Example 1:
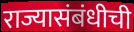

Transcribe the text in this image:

राज्यासंबंधीची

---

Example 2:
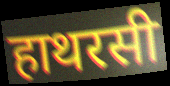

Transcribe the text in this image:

हाथरसी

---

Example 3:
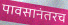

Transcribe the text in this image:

पावसानंतरच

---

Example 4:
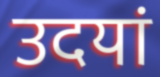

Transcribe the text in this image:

उदयां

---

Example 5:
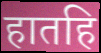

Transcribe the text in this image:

हातहि